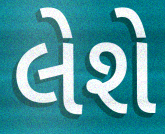
લેશે